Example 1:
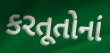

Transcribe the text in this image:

કરતૂતોનાં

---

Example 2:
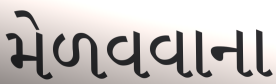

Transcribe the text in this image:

મેળવવાના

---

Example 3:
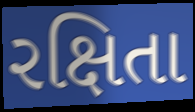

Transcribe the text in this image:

રક્ષિતા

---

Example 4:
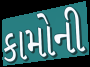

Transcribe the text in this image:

કામોની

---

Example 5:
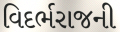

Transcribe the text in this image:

વિદર્ભરાજની